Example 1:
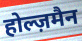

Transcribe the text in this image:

होल्ज़मैन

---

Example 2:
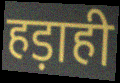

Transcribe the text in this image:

हड़ाही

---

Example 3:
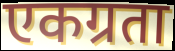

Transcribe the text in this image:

एकग्रता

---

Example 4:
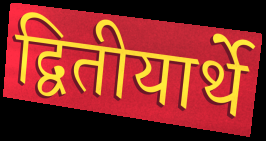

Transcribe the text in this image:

द्वितीयार्थे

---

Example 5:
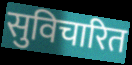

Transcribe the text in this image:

सुविचारित